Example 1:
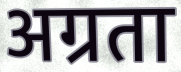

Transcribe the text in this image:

अग्रता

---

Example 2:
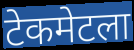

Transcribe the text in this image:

टेकमेटला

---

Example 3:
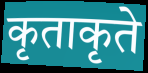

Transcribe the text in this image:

कृताकृते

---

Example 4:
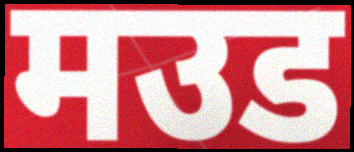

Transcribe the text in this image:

मउड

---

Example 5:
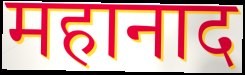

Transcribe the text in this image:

महानाद